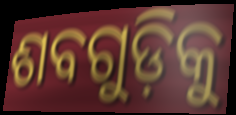
ଶବଗୁଡ଼ିକୁ